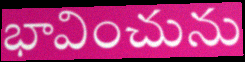
భావించును